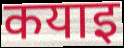
कयाइ